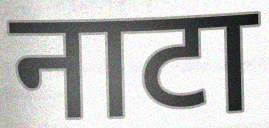
नाटा